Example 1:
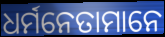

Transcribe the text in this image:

ଧର୍ମନେତାମାନେ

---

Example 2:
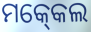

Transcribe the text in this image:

ମକ୍‍କେଲ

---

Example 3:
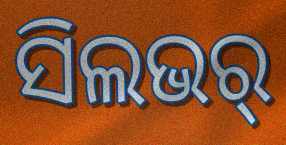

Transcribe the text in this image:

ସିଲଭର୍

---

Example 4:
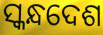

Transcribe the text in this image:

ସ୍କନ୍ଧଦେଶ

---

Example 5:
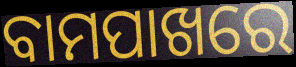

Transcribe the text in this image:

ବାମପାଖରେ